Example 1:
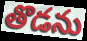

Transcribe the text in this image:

తొడను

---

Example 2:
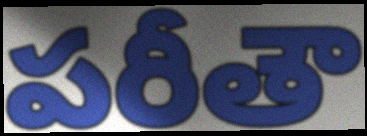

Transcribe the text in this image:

పరీతౌ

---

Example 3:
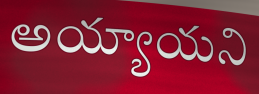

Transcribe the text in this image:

అయ్యాయని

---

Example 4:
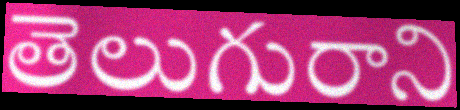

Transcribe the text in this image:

తెలుగురాని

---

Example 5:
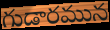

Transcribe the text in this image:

గుడారమున